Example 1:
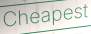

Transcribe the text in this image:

Cheapest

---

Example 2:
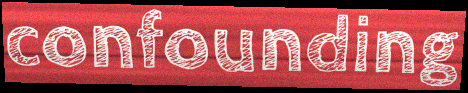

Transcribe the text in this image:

confounding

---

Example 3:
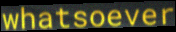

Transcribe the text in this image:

whatsoever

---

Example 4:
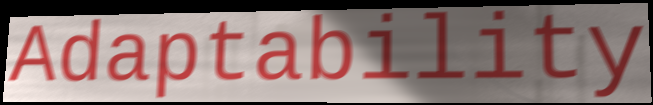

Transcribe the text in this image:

Adaptability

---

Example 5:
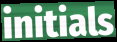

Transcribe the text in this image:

initials